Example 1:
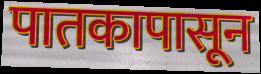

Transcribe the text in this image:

पातकापासून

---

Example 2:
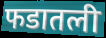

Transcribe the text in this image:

फडातली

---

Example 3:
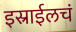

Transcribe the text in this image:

इस्राईलचं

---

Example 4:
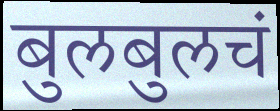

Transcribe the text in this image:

बुलबुलचं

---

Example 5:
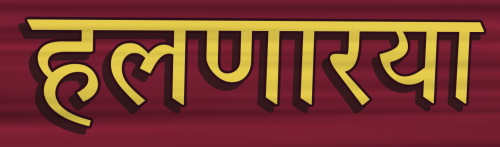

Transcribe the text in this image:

हलणारया